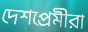
দেশপ্রেমীরা